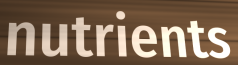
nutrients